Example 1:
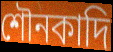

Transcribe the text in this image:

শৌনকাদি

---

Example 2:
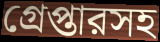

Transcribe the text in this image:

গ্রেপ্তারসহ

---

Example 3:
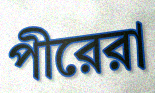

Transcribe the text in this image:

পীরেরা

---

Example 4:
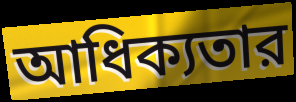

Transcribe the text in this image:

আধিক্যতার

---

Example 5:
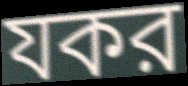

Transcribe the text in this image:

যকর